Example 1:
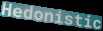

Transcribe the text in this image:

Hedonistic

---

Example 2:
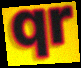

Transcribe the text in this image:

qr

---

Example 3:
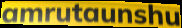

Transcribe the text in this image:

amrutaunshu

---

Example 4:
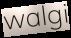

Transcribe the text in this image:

walgi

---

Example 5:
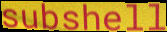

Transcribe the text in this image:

subshell